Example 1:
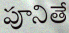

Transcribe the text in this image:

పూనితే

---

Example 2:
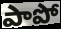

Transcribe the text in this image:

పాపో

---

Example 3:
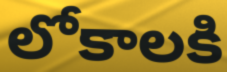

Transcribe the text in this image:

లోకాలకి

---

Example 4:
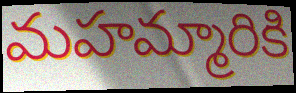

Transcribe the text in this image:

మహమ్మారికి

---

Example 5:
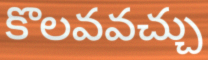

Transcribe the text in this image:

కొలవవచ్చు